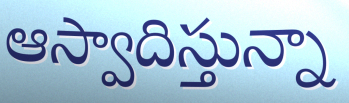
ఆస్వాదిస్తున్నా